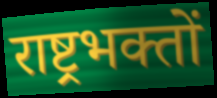
राष्ट्रभक्तों